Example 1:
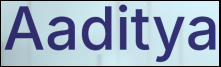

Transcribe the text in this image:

Aaditya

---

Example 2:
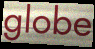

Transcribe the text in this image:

globe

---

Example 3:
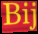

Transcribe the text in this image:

Bij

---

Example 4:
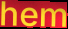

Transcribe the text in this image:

hem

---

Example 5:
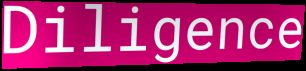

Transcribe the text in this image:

Diligence